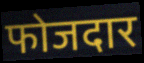
फोजदार